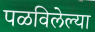
पळविलेल्या